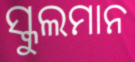
ସ୍କୁଲମାନ